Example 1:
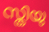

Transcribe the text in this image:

സ്തിയു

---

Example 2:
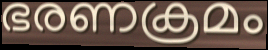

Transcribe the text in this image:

ഭരണക്രമം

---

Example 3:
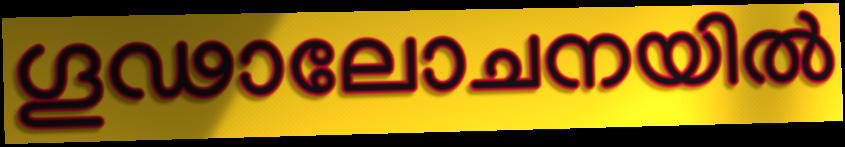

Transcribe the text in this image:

ഗൂഢാലോചനയിൽ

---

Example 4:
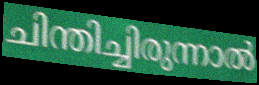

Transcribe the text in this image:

ചിന്തിച്ചിരുന്നാൽ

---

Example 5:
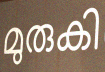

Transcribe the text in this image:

മുരുകി